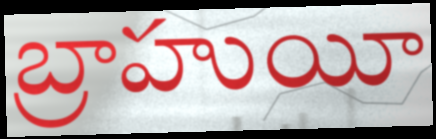
బ్రాహుయీ